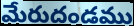
మేరుదండము